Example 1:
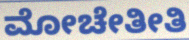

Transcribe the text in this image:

ಮೋಚೇತೀತಿ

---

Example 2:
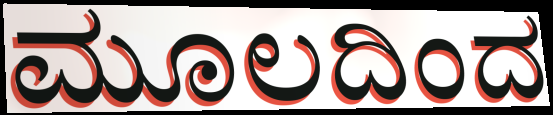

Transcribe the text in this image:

ಮೂಲದಿಂದ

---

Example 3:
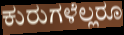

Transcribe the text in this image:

ಕುರುಗಳೆಲ್ಲರೂ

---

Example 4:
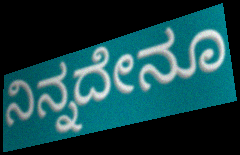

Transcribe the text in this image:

ನಿನ್ನದೇನೂ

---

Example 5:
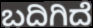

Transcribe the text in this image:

ಬದಿಗಿದೆ